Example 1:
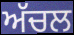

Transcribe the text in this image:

ਅੱਚਲ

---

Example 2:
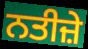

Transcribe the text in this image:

ਨਤੀਜ਼ੇ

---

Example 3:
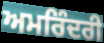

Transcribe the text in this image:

ਅਮਰਿੰਦਰੀ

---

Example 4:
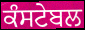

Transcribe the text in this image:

ਕੰਸਟੇਬਲ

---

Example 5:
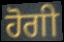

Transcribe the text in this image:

ਹੋਗੀ